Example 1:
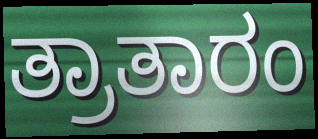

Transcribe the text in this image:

ತ್ರಾತಾರಂ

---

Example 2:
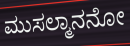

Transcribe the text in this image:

ಮುಸಲ್ಮಾನನೋ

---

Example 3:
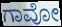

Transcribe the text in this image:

ಗಾವೋ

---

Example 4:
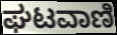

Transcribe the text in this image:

ಘಟವಾಣಿ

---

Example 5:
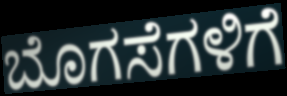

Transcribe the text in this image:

ಬೊಗಸೆಗಳಿಗೆ